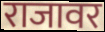
राजावर